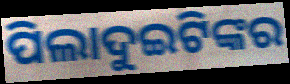
ପିଲାଦୁଇଟିଙ୍କର